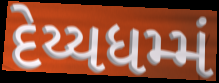
દેય્યધમ્મં